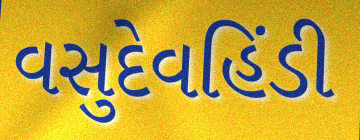
વસુદેવહિંડી